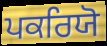
ਪਕਰਿਯੋ